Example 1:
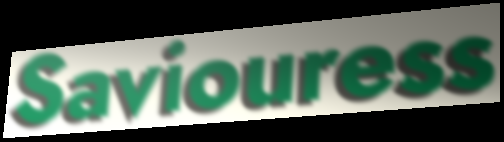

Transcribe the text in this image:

Saviouress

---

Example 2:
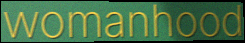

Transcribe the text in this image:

womanhood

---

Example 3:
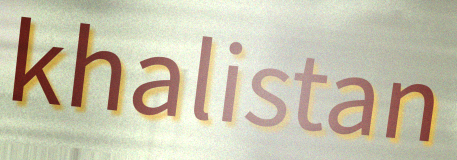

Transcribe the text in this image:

khalistan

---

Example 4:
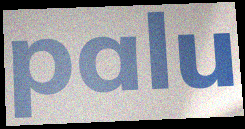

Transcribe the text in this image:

palu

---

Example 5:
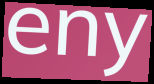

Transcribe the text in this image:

eny